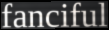
fanciful